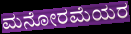
ಮನೋರಮೆಯರ